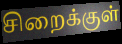
சிறைக்குள்